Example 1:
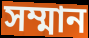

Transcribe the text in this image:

সম্মান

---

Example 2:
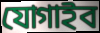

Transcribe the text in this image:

যোগাইব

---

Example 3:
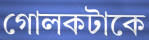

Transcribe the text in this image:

গোলকটাকে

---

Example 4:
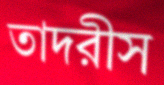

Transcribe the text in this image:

তাদরীস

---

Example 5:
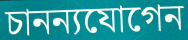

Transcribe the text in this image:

চানন্যযোগেন